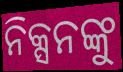
ନିକ୍ସନଙ୍କୁ